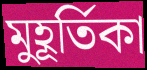
মুহূর্তিকা